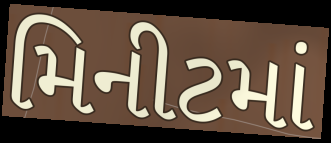
મિનીટમાં